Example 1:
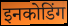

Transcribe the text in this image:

इनकोडिंग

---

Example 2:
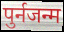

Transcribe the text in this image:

पुर्नजन्म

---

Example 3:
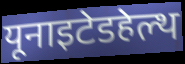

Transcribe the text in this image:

यूनाइटेडहेल्थ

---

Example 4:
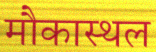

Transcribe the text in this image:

मौकास्थल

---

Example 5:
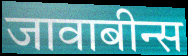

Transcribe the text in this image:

जावाबीन्स